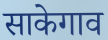
साकेगाव